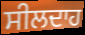
ਸੀਲਦਾਹ